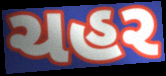
ચહર